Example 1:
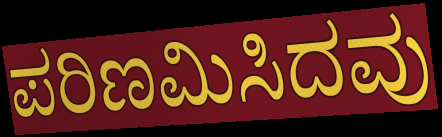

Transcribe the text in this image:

ಪರಿಣಮಿಸಿದವು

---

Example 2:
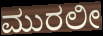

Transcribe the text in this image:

ಮುರಲೀ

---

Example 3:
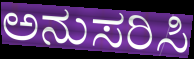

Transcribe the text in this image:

ಅನುಸರಿಸಿ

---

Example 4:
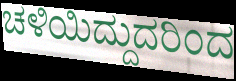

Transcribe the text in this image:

ಚಳಿಯಿದ್ದುದರಿಂದ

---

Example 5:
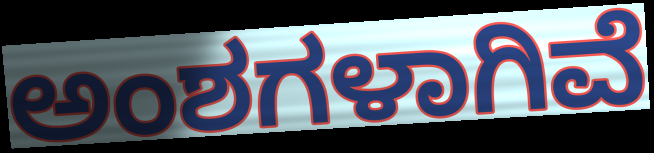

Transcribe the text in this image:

ಅಂಶಗಳಾಗಿವೆ